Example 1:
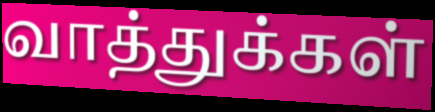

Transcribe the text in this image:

வாத்துக்கள்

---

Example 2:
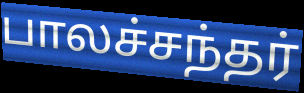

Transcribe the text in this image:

பாலச்சந்தர்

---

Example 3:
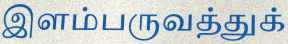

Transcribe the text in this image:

இளம்பருவத்துக்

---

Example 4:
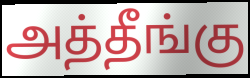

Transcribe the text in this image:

அத்தீங்கு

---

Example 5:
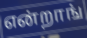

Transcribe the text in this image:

என்றாங்